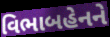
વિભાબહેનને